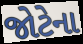
જોટેના